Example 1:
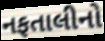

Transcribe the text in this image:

નફતાલીનો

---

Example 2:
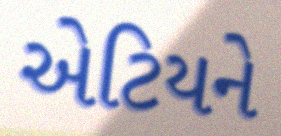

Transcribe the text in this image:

એટિયને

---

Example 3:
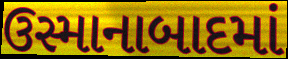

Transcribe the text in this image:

ઉસ્માનાબાદમાં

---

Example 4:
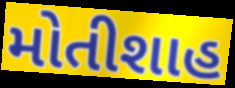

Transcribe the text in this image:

મોતીશાહ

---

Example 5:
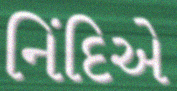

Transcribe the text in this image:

નિંદિએ